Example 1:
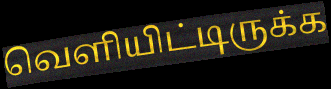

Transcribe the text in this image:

வெளியிட்டிருக்க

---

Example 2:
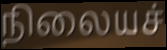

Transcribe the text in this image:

நிலையச்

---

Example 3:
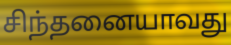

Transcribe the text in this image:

சிந்தனையாவது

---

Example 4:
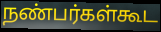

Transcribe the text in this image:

நண்பர்கள்கூட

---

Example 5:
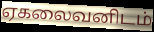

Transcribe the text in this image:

ஏகலைவனிடம்